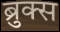
ब्रुक्‍स